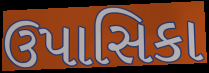
ઉપાસિકા